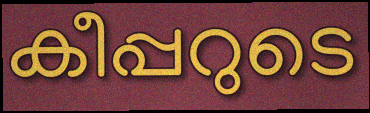
കീപ്പറുടെ